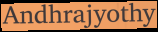
Andhrajyothy